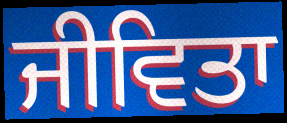
ਜੀਵਿਤਾ